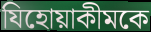
যিহোয়াকীমকে